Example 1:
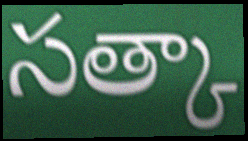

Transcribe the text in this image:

సత్కా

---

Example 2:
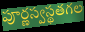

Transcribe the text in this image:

పూర్ణస్వస్థతగల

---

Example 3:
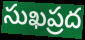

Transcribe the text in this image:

సుఖప్రద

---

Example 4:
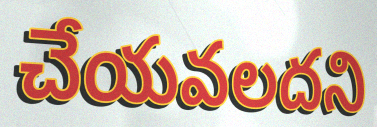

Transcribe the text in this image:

చేయవలదని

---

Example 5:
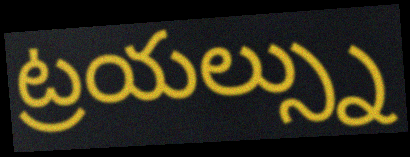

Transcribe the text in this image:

ట్రయల్స్ను